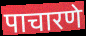
पाचारणे